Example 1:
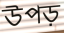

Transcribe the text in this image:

উপড়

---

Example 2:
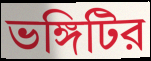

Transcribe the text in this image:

ভঙ্গিটির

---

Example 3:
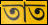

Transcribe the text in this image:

তাত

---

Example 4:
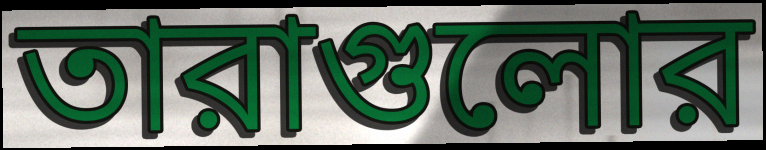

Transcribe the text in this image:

তারাগুলোর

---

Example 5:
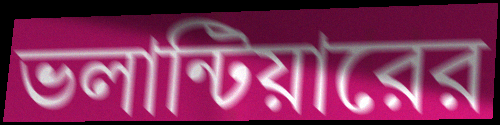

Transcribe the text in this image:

ভলান্টিয়ারের